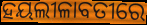
ହୟଲୀଳାବତୀରେ